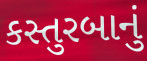
કસ્તુરબાનું